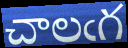
చాలఁగ